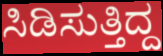
ಸಿಡಿಸುತ್ತಿದ್ದ